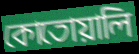
কোতোয়ালি